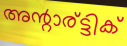
അന്റാര്ട്ടിക്